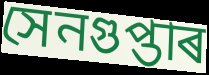
সেনগুপ্তাৰ